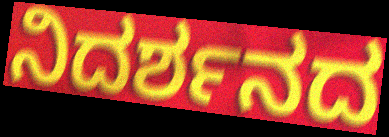
ನಿದರ್ಶನದ